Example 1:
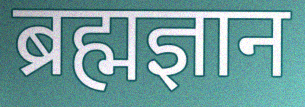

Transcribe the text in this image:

ब्रह्मज्ञान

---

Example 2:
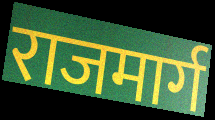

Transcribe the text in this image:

राजमार्ग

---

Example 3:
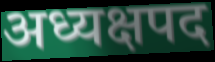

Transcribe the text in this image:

अध्यक्षपद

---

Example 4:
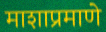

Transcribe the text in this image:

माशाप्रमाणे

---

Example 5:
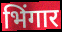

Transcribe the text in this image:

भिंगार